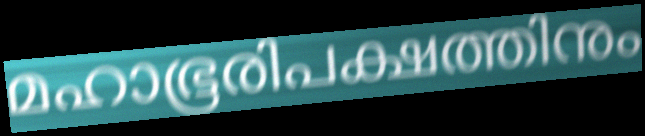
മഹാഭൂരിപക്ഷത്തിനും